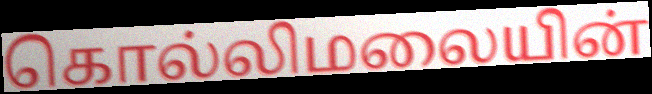
கொல்லிமலையின்